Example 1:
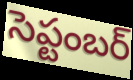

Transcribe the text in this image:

సెప్టంబర్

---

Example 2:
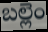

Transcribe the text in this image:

బల్లెం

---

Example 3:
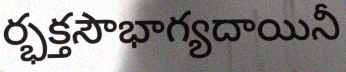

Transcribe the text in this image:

ర్భక్తసౌభాగ్యదాయినీ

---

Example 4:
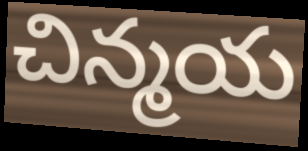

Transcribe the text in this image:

చిన్మయ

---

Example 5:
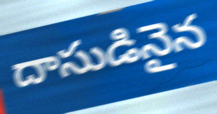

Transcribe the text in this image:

దాసుడినైన